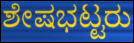
ಶೇಷಭಟ್ಟರು